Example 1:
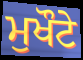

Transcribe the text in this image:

ਮੁਖੌਟੇ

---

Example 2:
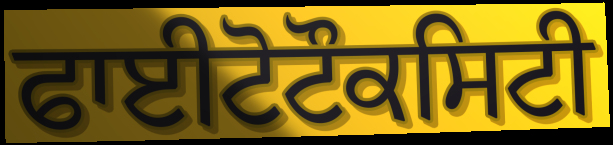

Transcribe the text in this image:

ਫਾਈਟੋਟੌਕਸਿਟੀ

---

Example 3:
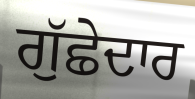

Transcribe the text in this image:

ਗੁੱਛੇਦਾਰ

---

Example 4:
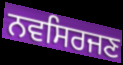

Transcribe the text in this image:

ਨਵਸਿਰਜਣ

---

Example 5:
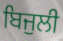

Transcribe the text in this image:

ਬਿਜੁਲੀ